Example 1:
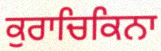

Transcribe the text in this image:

ਕੁਰਾਚਿਕਿਨਾ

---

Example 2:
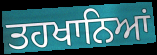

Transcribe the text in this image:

ਤਹਖਾਨਿਆਂ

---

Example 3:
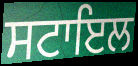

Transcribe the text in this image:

ਸਟਾਇਲ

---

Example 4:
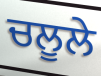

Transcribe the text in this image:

ਚਲੂਲੇ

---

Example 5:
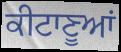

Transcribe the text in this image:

ਕੀਟਾਣੂਆਂ